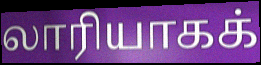
லாரியாகக்